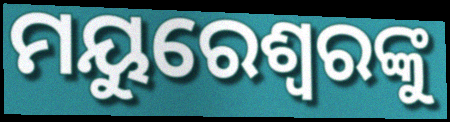
ମୟୁରେଶ୍ବରଙ୍କୁ